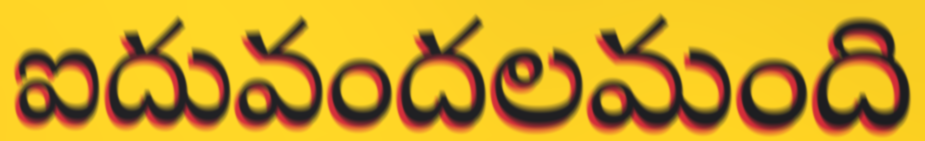
ఐదువందలమంది